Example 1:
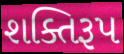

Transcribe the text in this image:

શક્તિરૂપ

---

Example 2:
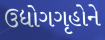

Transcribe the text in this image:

ઉદ્યોગગૃહોને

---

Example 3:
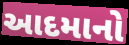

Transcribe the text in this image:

આદમાનો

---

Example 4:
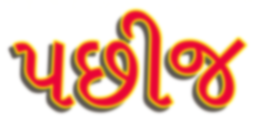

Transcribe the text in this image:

પછીજ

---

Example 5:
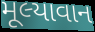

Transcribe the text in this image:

મૂલ્યાવાન